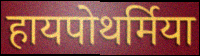
हायपोथर्मिया